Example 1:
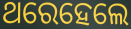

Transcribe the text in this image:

ଥରେହେଲେ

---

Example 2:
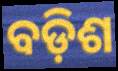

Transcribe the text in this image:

ବଡ଼ିଶ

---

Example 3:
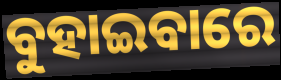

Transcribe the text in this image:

ବୁହାଇବାରେ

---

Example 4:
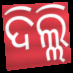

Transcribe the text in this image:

ଦିଲ୍ଲି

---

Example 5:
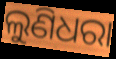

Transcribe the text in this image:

ଲୁଣିଧରା